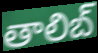
తాలిబ్